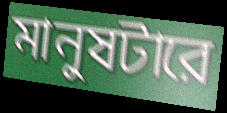
মানুষটারে